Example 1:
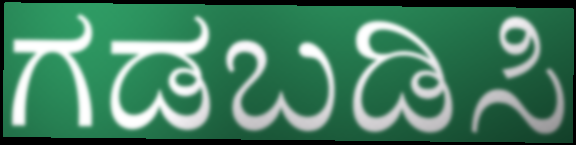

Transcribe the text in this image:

ಗಡಬಡಿಸಿ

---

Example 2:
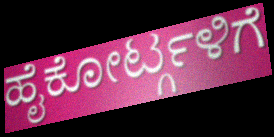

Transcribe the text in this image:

ಹೈಕೋರ್ಟ್ಗಳಿಗೆ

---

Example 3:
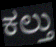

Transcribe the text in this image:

ಕಲ್ತು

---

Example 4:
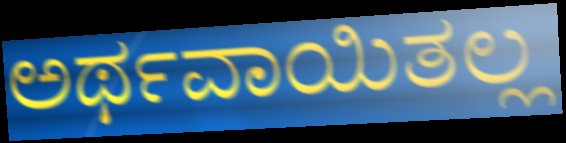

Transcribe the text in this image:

ಅರ್ಥವಾಯಿತಲ್ಲ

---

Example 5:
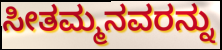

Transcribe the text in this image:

ಸೀತಮ್ಮನವರನ್ನು